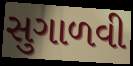
સુગાળવી